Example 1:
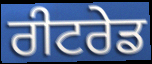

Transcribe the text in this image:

ਰੀਟਰੇਡ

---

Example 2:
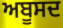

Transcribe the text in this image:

ਅਬੂਸਦ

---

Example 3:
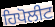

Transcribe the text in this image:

ਹਿਪੋਲੀਟ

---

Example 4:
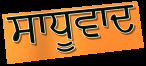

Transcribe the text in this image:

ਸਾਧੂਵਾਦ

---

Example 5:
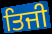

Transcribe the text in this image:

ਤਿਜੀ